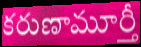
కరుణామూర్తీ